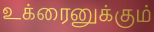
உக்ரைனுக்கும்